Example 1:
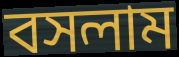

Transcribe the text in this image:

বসলাম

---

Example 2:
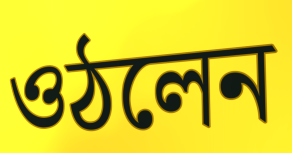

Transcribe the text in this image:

ওঠলেন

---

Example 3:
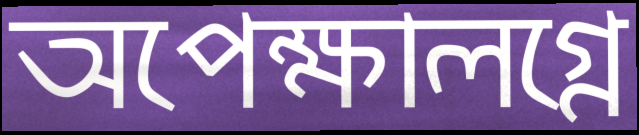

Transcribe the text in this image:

অপেক্ষালগ্নে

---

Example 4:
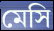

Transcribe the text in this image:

মেসি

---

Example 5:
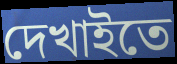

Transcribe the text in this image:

দেখাইতে